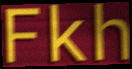
Fkh